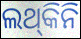
ଲଥ୍‍କିନି